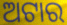
ଅଟାର